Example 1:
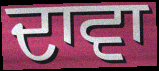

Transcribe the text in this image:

ਦਾਵਾ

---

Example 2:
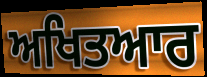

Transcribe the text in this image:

ਅਖਿਤਆਰ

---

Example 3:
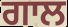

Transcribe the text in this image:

ਗਾਲ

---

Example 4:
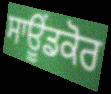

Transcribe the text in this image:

ਸਾਊਂਡਕੋਰ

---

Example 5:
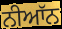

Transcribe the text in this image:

ਨੀਆੱਨ